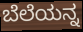
ಬೆಲೆಯನ್ನ